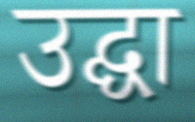
उद्घा